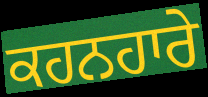
ਕਹਨਹਾਰੇ